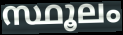
സ്ഥൂലം